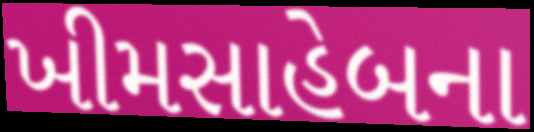
ખીમસાહેબના